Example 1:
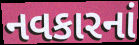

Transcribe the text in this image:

નવકારનાં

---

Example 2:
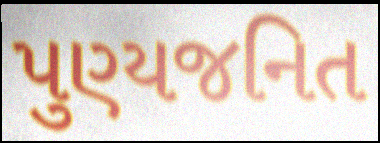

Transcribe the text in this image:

પુણ્યજનિત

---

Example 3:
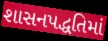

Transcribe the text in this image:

શાસનપદ્ધતિમાં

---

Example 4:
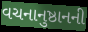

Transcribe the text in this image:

વચનાનુષ્ઠાનની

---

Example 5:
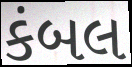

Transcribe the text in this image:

કંબલ